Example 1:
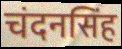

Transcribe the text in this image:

चंदनसिंह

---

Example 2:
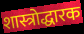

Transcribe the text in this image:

शास्त्रोद्धारक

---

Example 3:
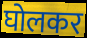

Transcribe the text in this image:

घोलकर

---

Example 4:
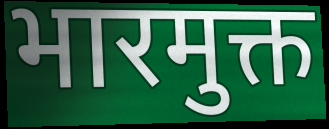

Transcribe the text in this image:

भारमुक्त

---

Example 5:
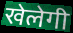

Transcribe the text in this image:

खेलेगी